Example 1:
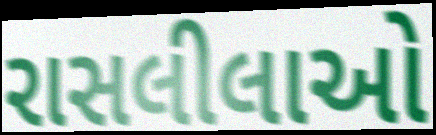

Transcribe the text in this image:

રાસલીલાઓ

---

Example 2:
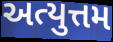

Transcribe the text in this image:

અત્યુત્તમ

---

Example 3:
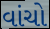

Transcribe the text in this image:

વાંચો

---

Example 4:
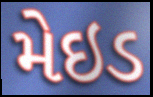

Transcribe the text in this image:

મેઇડ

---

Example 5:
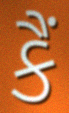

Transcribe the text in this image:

કૈં